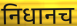
निधानच